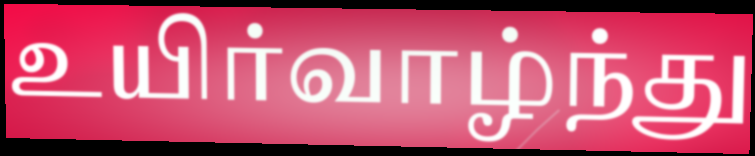
உயிர்வாழ்ந்து